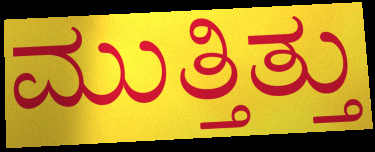
ಮುತ್ತಿತ್ತು